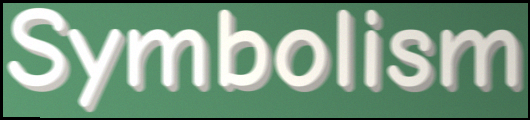
Symbolism